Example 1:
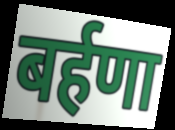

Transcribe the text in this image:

बर्हणा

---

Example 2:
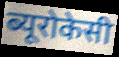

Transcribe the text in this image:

ब्यूरोकेसी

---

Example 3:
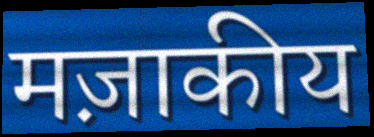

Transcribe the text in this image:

मज़ाकीय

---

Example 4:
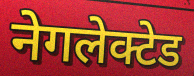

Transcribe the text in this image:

नेगलेक्टेड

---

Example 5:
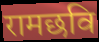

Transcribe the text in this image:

रामछवि